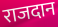
राजदान